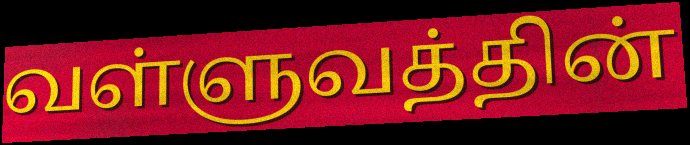
வள்ளுவத்தின்